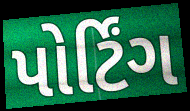
પોર્ટિંગ